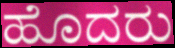
ಹೊದರು